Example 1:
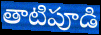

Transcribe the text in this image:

తాటిపూడి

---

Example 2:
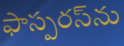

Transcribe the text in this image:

ఫాస్పరస్‌ను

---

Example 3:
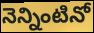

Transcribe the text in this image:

నెన్నింటినో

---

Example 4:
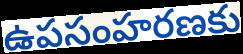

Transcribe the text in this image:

ఉపసంహరణకు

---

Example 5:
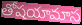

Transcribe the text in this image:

తోషయామాస